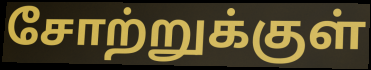
சோற்றுக்குள்